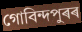
গোবিন্দপুৰৰ